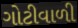
ગોટીવાળી